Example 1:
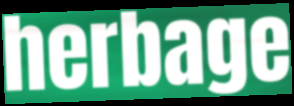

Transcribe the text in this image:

herbage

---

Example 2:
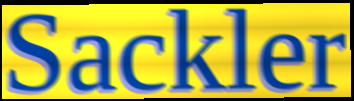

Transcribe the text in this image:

Sackler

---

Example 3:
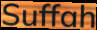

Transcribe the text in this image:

Suffah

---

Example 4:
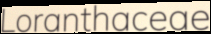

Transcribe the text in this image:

Loranthaceae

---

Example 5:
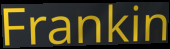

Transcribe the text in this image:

Frankin